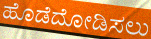
ಹೊಡೆದೋಡಿಸಲು